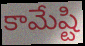
కామేష్టి